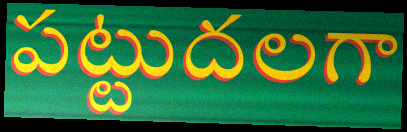
పట్టుదలగా